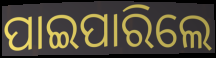
ପାଇପାରିଲେ